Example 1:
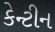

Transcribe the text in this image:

કેન્ટીન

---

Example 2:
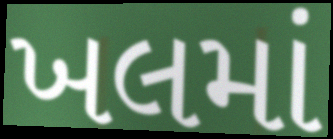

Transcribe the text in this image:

ખલમાં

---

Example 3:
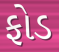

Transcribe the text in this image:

ફોડ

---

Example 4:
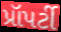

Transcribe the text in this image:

પ્રૉપર્ટી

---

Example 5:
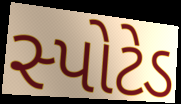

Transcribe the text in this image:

સ્પોટેડ